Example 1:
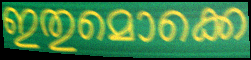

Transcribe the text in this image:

ഇതുമൊക്കെ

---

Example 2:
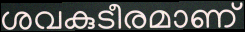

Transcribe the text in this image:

ശവകുടീരമാണ്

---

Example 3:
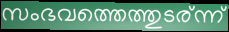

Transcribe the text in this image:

സംഭവത്തെത്തുടര്ന്ന്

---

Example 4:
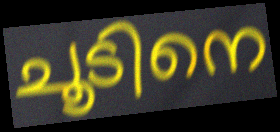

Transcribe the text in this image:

ചൂടിനെ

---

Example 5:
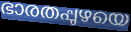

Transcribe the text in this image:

ഭാരതപ്പുഴയെ